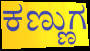
ಕಣ್ಣುಗ